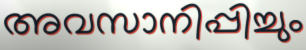
അവസാനിപ്പിച്ചും